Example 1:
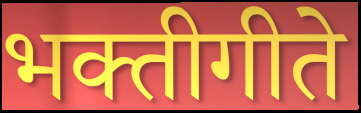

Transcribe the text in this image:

भक्तीगीते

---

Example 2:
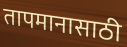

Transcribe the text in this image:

तापमानासाठी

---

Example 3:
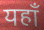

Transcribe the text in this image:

यहाँ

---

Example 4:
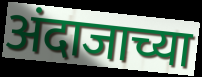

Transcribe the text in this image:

अंदाजाच्या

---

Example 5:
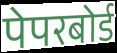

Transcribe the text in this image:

पेपरबोर्ड